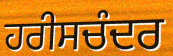
ਹਰੀਸਚੰਦਰ